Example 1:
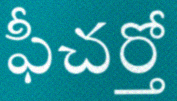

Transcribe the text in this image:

ఫీచర్తో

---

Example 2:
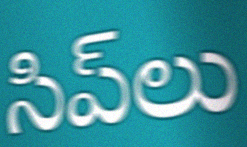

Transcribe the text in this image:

సిప్‌లు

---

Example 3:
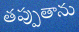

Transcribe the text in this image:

తప్పుతాను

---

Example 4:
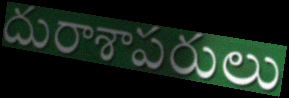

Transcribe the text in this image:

దురాశాపరులు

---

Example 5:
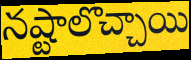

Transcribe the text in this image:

నష్టాలొచ్చాయి